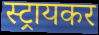
स्ट्रायकर